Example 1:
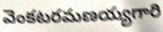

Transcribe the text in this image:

వెంకటరమణయ్యగారి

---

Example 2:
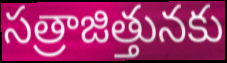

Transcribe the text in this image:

సత్రాజిత్తునకు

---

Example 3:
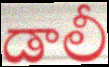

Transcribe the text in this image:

డాలీ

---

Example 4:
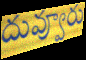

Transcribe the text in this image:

దువ్వూరు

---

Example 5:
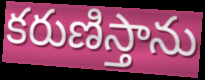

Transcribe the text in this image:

కరుణిస్తాను